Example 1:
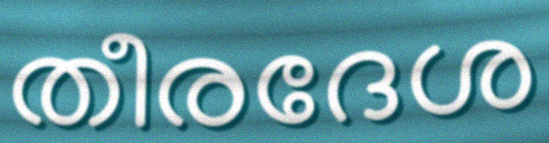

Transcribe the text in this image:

തീരദേശ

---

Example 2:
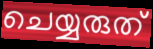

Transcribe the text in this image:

ചെയ്യരുത്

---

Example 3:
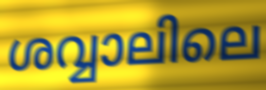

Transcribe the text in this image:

ശവ്വാലിലെ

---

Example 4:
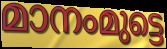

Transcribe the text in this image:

മാനംമുട്ടെ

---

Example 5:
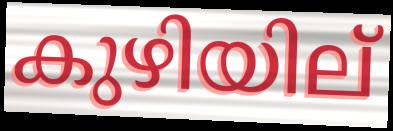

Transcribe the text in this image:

കുഴിയില്